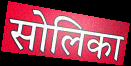
सोलिका